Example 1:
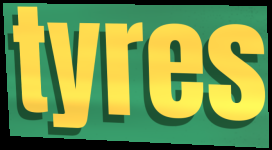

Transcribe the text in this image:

tyres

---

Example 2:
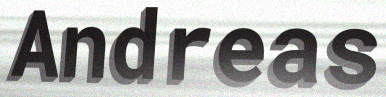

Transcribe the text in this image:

Andreas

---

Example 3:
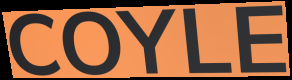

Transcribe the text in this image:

COYLE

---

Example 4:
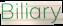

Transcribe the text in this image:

Biliary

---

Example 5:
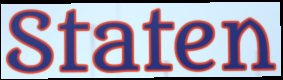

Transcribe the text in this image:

Staten